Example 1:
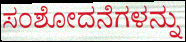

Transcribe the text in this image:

ಸಂಶೋದನೆಗಳನ್ನು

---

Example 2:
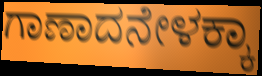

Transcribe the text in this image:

ಗಾಣಾದನೇಳಕ್ಕಾ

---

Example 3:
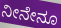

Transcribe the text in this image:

ನೀನೇನೂ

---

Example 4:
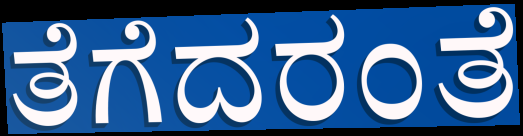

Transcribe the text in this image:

ತೆಗೆದರಂತೆ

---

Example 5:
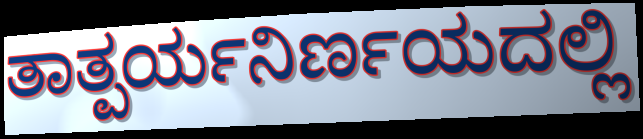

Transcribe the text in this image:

ತಾತ್ಪರ್ಯನಿರ್ಣಯದಲ್ಲಿ